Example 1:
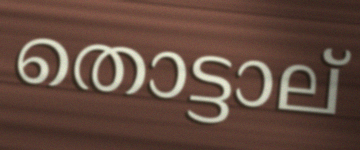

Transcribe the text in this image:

തൊട്ടാല്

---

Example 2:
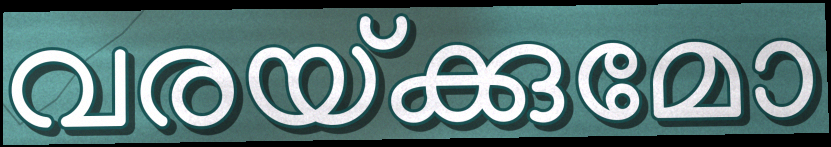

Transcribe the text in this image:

വരയ്‌ക്കുമോ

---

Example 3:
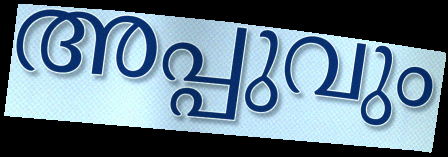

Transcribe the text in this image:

അപ്പുവും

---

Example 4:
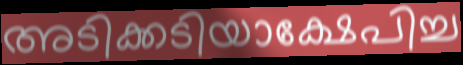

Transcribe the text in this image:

അടിക്കടിയാക്ഷേപിച്ച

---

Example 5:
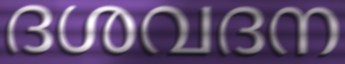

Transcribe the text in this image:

ദശവദന